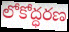
లోకోద్ధరణ